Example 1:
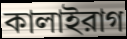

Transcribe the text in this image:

কালাইরাগ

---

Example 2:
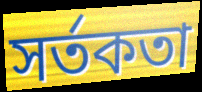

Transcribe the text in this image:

সর্তকতা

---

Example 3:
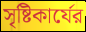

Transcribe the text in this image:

সৃষ্টিকার্যের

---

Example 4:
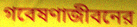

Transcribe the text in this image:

গবেষণাজীবনের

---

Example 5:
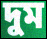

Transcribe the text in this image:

দুম